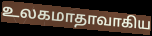
உலகமாதாவாகிய